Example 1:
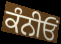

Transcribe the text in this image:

ਕੰਨੀਓਂ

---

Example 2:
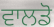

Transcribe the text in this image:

ਵਾਲਡੋ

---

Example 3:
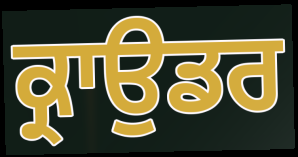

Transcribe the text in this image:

ਕ੍ਰਾਉਡਰ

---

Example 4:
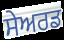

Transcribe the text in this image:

ਸੇਅਰਡ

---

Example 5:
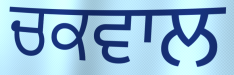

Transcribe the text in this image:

ਚਕਵਾਲ